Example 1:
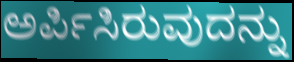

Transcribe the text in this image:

ಅರ್ಪಿಸಿರುವುದನ್ನು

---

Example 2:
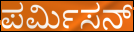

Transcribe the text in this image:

ಪರ್ಮಿಸನ್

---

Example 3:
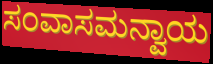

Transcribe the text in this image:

ಸಂವಾಸಮನ್ವಾಯ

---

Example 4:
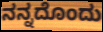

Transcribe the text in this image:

ನನ್ನದೊಂದು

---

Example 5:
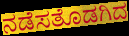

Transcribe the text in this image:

ನಡೆಸತೊಡಗಿದ